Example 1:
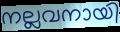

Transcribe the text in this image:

നല്ലവനായി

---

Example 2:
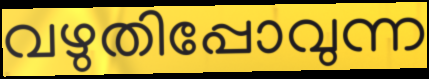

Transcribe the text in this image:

വഴുതിപ്പോവുന്ന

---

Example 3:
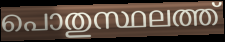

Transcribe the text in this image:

പൊതുസ്ഥലത്ത്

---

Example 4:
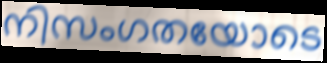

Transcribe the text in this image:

നിസംഗതയോടെ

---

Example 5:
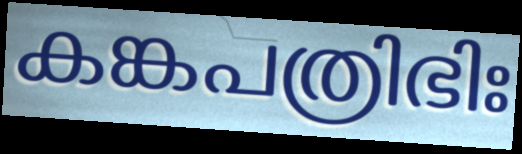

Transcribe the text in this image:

കങ്കപത്രിഭിഃ